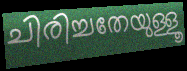
ചിരിച്ചതേയുള്ളൂ